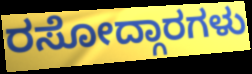
ರಸೋದ್ಗಾರಗಳು